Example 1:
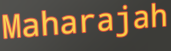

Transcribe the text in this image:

Maharajah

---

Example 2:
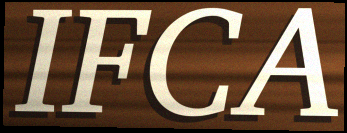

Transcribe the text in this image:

IFCA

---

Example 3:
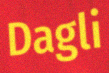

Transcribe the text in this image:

Dagli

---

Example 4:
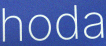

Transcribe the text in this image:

hoda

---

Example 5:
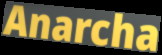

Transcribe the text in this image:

Anarcha